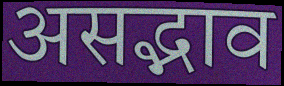
असद्भाव